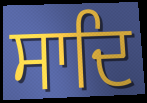
ਸਾਦਿ